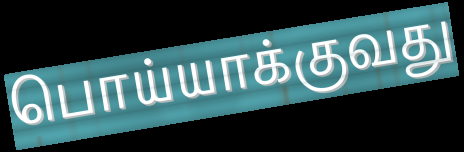
பொய்யாக்குவது